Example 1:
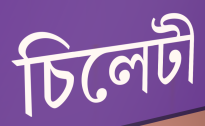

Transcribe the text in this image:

চিলেটী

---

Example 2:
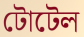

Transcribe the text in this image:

টোটেল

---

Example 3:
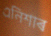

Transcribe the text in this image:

এনিশাৰ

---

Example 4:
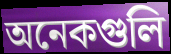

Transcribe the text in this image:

অনেকগুলি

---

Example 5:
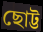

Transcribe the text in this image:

ছোট্ট